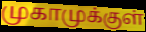
முகாமுக்குள்